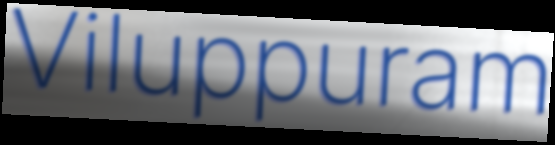
Viluppuram